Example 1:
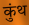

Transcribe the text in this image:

कुंथ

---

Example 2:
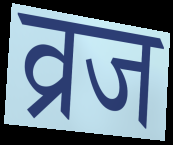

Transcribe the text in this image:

व्रज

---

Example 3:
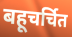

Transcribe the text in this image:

बहूचर्चित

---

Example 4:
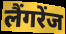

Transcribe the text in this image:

लैंगरेंज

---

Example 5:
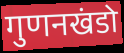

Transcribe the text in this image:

गुणनखंडो